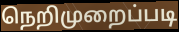
நெறிமுறைப்படி